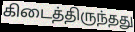
கிடைத்திருந்தது